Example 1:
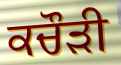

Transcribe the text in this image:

ਕਚੌੜੀ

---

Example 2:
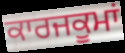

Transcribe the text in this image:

ਕਾਰਜਕੂਮਾਂ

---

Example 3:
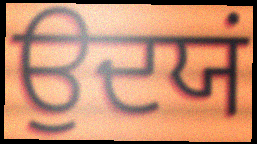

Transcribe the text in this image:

ਉਦਯਂ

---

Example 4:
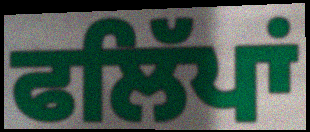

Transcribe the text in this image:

ਫਲਿੱਪਾਂ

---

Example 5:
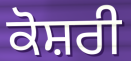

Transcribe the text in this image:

ਕੋਸ਼ਰੀ